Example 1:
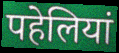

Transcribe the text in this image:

पहेलियां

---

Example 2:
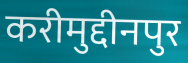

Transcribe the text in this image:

करीमुद्दीनपुर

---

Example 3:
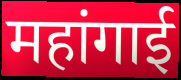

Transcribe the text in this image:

महांगाई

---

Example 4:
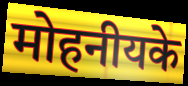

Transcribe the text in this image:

मोहनीयके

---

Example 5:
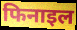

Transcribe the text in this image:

फिनाइल